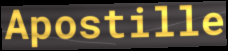
Apostille